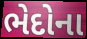
ભેદોના